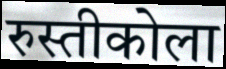
रुस्तीकोला